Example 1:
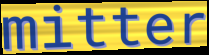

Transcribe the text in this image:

mitter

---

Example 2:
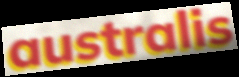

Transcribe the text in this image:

australis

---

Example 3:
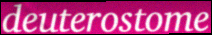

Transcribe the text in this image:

deuterostome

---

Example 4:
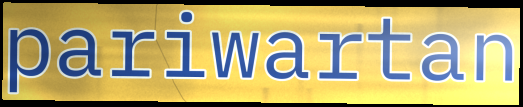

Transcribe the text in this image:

pariwartan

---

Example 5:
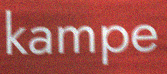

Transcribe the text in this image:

kampe